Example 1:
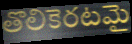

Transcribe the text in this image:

తొలికెరటమై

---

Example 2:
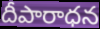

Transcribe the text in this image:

దీపారాధన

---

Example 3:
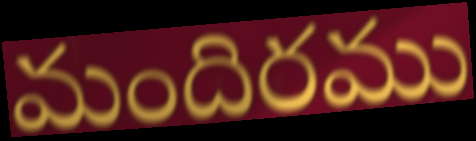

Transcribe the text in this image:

మందిరము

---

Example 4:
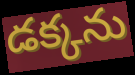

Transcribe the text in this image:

డక్కను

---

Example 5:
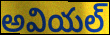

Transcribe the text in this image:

అవియల్